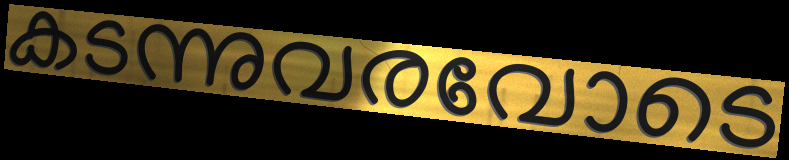
കടന്നുവരവോടെ